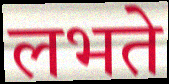
लभते